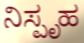
ನಿಸ್ಪೃಹ